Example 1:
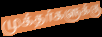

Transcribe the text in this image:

முக்தர்களுக்கு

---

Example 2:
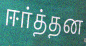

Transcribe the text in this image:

ஈர்த்தன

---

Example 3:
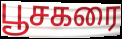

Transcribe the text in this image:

பூசகரை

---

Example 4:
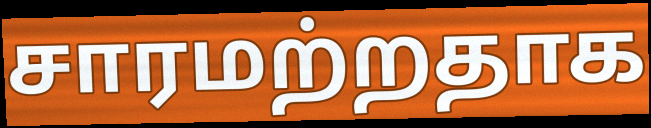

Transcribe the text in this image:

சாரமற்றதாக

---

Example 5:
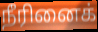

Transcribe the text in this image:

நீரினைக்